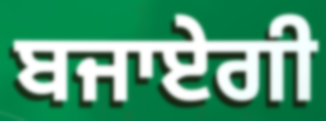
ਬਜਾਏਗੀ